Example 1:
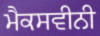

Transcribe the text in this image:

ਮੈਕਸਵੀਨੀ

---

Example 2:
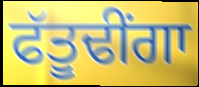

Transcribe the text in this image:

ਫੱਤੂਢੀਂਗਾ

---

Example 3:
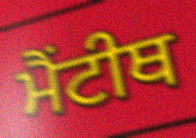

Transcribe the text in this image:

ਮੈਂਟੀਥ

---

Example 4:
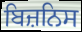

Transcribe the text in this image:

ਬਿਜ਼ਨਿਸ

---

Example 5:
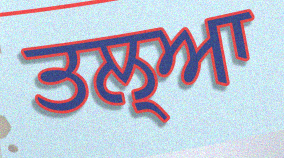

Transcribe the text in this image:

ਤਲ੍ਆ